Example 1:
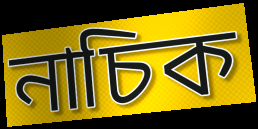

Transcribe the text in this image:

নাচিক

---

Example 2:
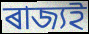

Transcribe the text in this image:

ৰাজ্যই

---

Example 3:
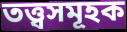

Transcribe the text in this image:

তত্ত্বসমূহক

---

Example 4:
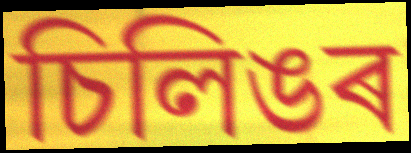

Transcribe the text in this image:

চিলিঙৰ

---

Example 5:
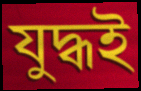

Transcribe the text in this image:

যুদ্ধই